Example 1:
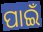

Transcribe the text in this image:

ପାଇଁ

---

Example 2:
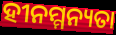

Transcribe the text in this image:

ହୀନମ୍ମନ୍ୟତା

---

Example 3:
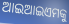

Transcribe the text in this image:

ଆଇଆଇଏମକୁ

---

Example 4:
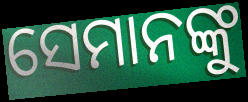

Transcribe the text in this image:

ସେମାନଙ୍କୁ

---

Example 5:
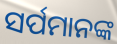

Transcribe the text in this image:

ସର୍ପମାନଙ୍କ